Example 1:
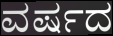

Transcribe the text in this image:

ವರ್ಷದ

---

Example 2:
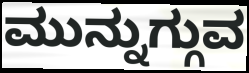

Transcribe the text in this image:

ಮುನ್ನುಗ್ಗುವ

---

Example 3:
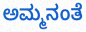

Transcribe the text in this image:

ಅಮ್ಮನಂತೆ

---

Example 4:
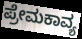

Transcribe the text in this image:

ಪ್ರೇಮಕಾವ್ಯ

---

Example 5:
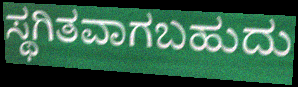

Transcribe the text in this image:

ಸ್ಥಗಿತವಾಗಬಹುದು